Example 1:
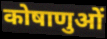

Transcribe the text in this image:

कोषाणुओं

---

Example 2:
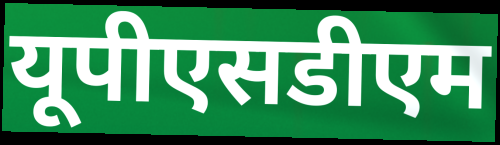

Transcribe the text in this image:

यूपीएसडीएम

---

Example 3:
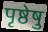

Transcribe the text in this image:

पृष्ठेषु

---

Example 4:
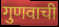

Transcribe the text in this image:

गुणवाची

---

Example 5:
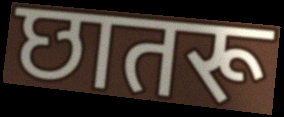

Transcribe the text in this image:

छातरू